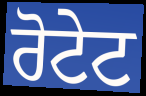
ਰੋਟੇਟ